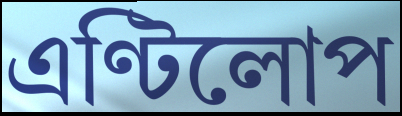
এণ্টিলোপ